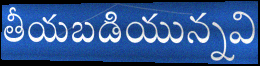
తీయబడియున్నవి